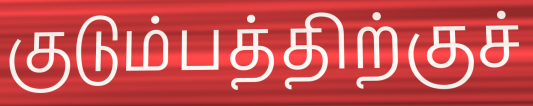
குடும்பத்திற்குச்